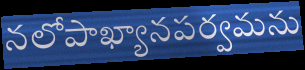
నలోపాఖ్యానపర్వమను